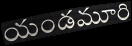
యండమూరి